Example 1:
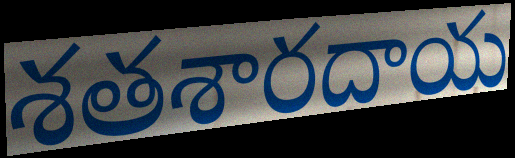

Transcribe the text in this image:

శతశారదాయ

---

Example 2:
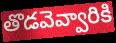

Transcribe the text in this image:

తొడవెవ్వారికి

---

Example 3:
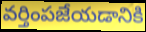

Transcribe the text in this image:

వర్తింపజేయడానికి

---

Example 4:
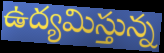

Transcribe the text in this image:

ఉద్యమిస్తున్న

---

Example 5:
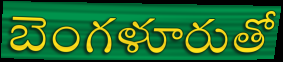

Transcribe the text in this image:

బెంగళూరుతో